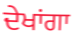
ਦੇਖਾਂਗਾ